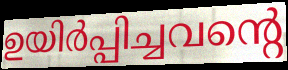
ഉയിർപ്പിച്ചവന്റെ